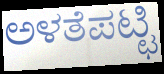
ಅಳತೆಪಟ್ಟಿ